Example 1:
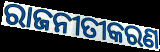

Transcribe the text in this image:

ରାଜନୀତୀକରଣ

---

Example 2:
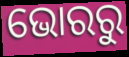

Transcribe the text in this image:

ଭୋରରୁ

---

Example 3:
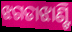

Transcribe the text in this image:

ଝଗଡାଝାଣ୍ଟି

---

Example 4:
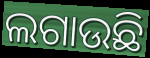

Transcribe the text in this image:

ଲଗାଉଛି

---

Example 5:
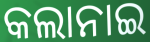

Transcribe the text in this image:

କଲାନାଇ